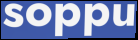
soppu